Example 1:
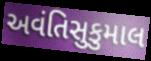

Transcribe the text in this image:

અવંતિસુકુમાલ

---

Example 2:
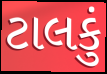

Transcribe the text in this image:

ટાલકું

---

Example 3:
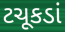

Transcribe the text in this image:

ટચૂકડાં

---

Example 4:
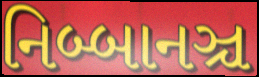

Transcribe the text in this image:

નિબ્બાનઞ્ચ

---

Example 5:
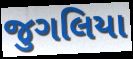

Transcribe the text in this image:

જુગલિયા